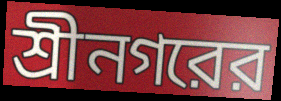
শ্রীনগরের